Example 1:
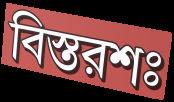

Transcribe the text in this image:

বিস্তরশঃ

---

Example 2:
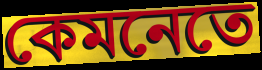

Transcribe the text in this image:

কেমনেতে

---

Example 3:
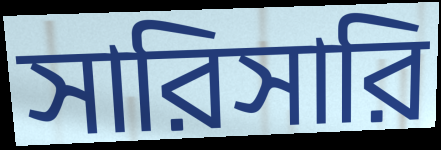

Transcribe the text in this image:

সারিসারি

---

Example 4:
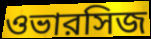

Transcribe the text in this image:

ওভারসিজ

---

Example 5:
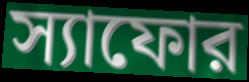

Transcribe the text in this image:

স্যাফোর